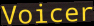
Voicer